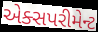
એક્સપરીમેન્ટ